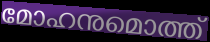
മോഹനുമൊത്ത്